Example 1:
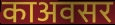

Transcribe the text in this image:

काअवसर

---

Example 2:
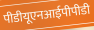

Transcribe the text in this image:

पीडीयूएनआईपीपीडी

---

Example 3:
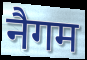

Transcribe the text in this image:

नैगम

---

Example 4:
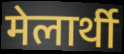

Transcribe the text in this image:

मेलार्थी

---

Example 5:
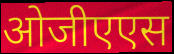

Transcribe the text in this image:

ओजीएएस